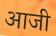
आजी